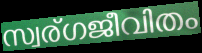
സ്വര്ഗജീവിതം